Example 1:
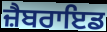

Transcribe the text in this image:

ਜ਼ੈਬਰਾਇਡ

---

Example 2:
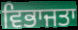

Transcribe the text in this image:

ਵਿਭਾਜਤਾ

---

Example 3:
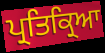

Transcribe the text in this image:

ਪ੍ਰਤਿਕ੍ਰਿਆ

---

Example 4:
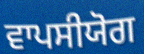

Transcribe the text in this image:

ਵਾਪਸੀਯੋਗ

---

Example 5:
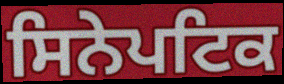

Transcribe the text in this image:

ਸਿਨੇਪਟਿਕ